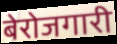
बेरोजगारी